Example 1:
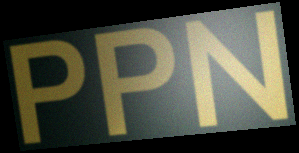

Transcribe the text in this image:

PPN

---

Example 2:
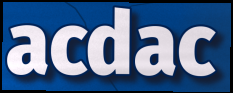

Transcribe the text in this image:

acdac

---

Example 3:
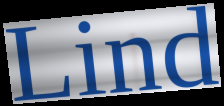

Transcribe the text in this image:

Lind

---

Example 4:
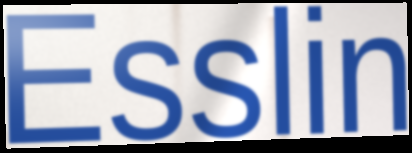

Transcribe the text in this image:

Esslin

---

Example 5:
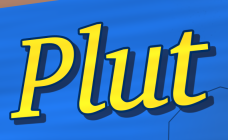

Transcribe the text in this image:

Plut